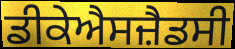
ਡੀਕੇਐਸਜ਼ੈਡਸੀ